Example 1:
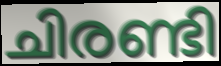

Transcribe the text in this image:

ചിരണ്ടി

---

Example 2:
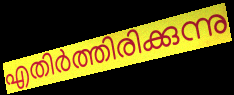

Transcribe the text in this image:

എതിർത്തിരിക്കുന്നു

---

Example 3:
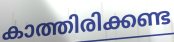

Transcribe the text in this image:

കാത്തിരിക്കണ്ട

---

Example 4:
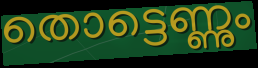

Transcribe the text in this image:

തൊട്ടെണ്ണും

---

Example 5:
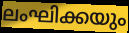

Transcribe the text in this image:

ലംഘിക്കയും